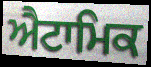
ਐਟਾਮਿਕ